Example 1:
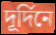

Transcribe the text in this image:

দূর্দিনে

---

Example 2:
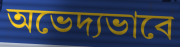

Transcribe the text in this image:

অভেদ্যভাবে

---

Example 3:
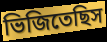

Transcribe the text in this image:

ভিজিতেছিস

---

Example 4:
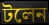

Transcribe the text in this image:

টলেন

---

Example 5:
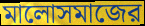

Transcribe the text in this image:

মালোসমাজের